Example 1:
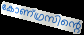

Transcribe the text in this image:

കോണ്ഗ്രസിന്റെ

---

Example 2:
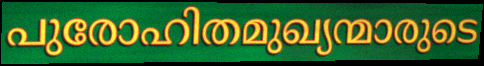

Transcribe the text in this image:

പുരോഹിതമുഖ്യന്മാരുടെ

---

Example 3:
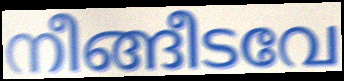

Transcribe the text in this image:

നീങ്ങീടവേ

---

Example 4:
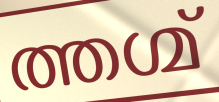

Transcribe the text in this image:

ത്തഗ്മ്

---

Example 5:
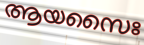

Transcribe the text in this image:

ആയസൈഃ